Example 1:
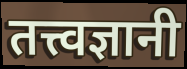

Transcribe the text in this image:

तत्त्वज्ञानी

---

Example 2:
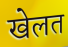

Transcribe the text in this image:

खेलत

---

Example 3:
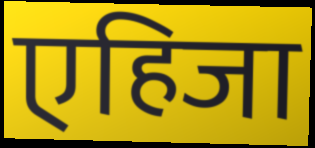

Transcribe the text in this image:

एहिजा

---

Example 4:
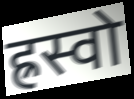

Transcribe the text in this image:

ह्रस्वो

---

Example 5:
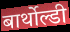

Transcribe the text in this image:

बार्थोल्डी